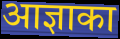
आज्ञाका